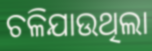
ଚଳିଯାଉଥିଲା